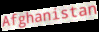
Afghanistan